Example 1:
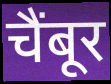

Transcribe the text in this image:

चैंबूर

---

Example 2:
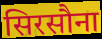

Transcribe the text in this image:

सिरसौना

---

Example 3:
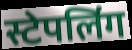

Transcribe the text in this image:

स्टेपलिंग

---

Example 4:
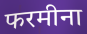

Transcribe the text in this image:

फरमीना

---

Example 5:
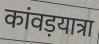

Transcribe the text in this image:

कांवड़यात्रा